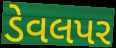
ડેવલપર